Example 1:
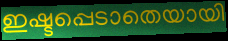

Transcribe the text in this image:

ഇഷ്ടപ്പെടാതെയായി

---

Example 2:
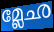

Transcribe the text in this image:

മ്ലേഛ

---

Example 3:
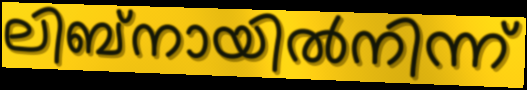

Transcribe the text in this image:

ലിബ്നായിൽനിന്ന്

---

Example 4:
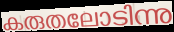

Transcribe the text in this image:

കരുതലോടിന്നു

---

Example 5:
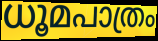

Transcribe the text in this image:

ധൂമപാത്രം